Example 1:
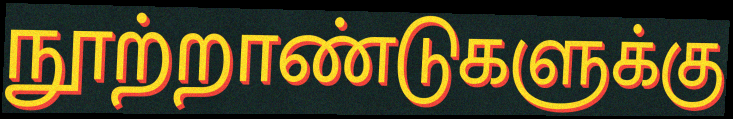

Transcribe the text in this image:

நூற்றாண்டுகளுக்கு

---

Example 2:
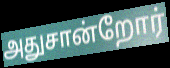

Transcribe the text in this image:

அதுசான்றோர்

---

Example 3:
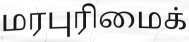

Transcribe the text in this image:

மரபுரிமைக்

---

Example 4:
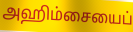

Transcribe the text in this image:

அஹிம்சையைப்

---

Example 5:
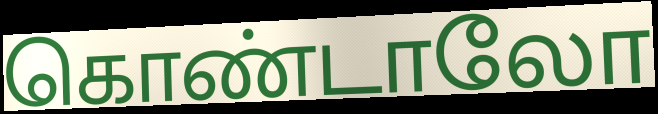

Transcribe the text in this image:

கொண்டாலோ